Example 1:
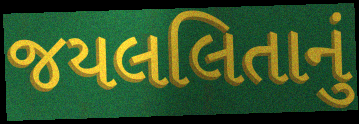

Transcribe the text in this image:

જયલલિતાનું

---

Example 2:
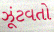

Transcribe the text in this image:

ઝૂંટવતો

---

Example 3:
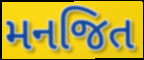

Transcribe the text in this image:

મનજિત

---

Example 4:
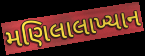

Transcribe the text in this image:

મણિલાલાખ્યાન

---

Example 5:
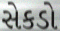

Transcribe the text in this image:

સેકડો